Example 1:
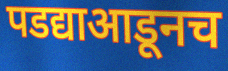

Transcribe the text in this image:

पडद्याआडूनच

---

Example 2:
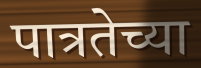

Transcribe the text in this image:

पात्रतेच्या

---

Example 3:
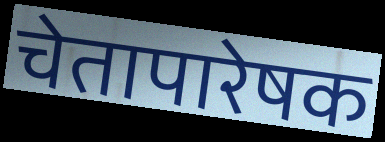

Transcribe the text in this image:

चेतापारेषक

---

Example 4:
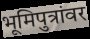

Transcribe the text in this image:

भूमिपुत्रांवर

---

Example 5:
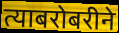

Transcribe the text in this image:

त्याबरोबरीने